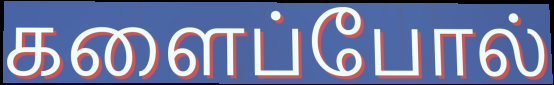
களைப்போல்